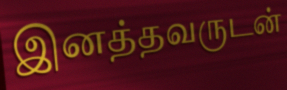
இனத்தவருடன்